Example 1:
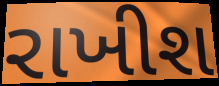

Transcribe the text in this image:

રાખીશ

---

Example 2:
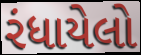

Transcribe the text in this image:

રંધાયેલો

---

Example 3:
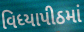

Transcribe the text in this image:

વિધ્યાપીઠમાં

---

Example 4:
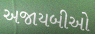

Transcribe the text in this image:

અજાયબીઓ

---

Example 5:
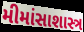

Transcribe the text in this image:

મીમાંસાશાસ્ત્ર